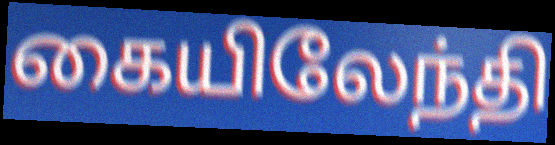
கையிலேந்தி